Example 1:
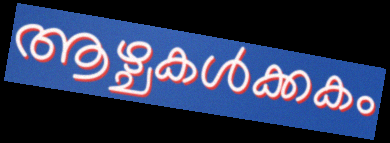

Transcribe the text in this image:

ആഴ്ചകൾക്കകം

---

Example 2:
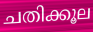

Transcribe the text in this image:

ചതിക്കൂല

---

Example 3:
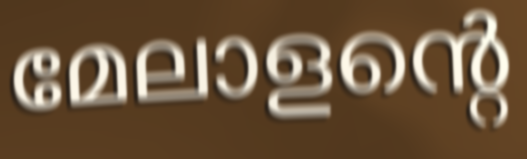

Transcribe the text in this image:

മേലാളന്റെ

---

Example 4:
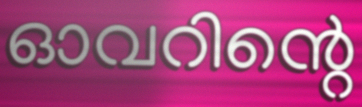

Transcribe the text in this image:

ഓവറിന്റെ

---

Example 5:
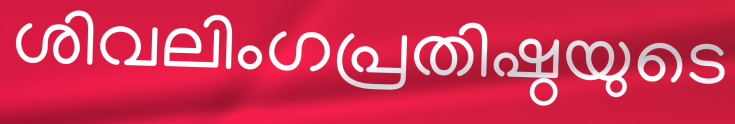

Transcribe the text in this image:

ശിവലിംഗപ്രതിഷ്ഠയുടെ